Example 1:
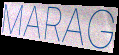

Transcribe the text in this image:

MARAG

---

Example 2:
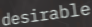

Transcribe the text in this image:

desirable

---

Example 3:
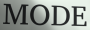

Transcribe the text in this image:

MODE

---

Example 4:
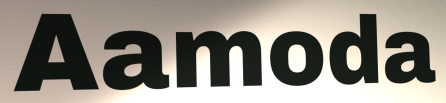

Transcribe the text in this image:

Aamoda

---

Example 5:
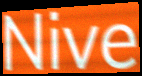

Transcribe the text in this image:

Nive